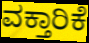
ವಕ್ತಾರಿಕೆ